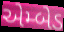
એમ્બેડ